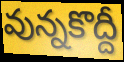
వున్నకొద్దీ